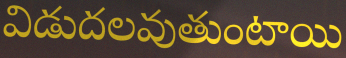
విడుదలవుతుంటాయి